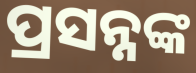
ପ୍ରସନ୍ନଙ୍କ